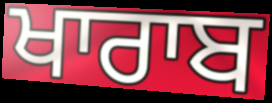
ਖਾਰਾਬ